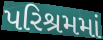
પરિશ્રમમાં